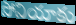
సోనియాకు